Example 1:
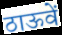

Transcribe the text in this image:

ठाऊवें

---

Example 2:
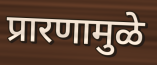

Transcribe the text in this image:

प्रारणामुळे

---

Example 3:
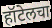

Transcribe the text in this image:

हॉटेलचा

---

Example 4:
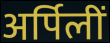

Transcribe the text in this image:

अर्पिलीं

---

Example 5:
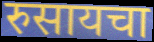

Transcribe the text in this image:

रुसायचा